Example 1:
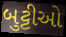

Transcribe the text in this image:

બુટ્ટીઓ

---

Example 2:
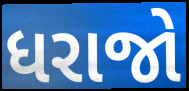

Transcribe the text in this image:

ધરાજો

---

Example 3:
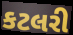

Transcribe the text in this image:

કટલરી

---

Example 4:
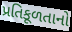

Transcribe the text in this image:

પ્રતિકૂળતાનો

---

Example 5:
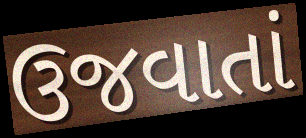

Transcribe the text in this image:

ઉજવાતાં